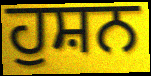
ਹੁਸ਼ਨ